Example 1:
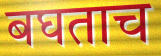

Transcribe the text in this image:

बघताच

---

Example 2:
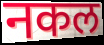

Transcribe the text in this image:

नकल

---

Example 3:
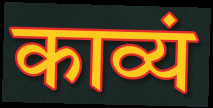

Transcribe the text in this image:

काव्यं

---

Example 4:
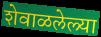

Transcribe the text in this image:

शेवाळलेल्या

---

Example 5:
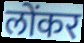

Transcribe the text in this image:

लोंकर